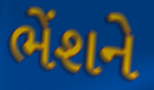
ભેંશને